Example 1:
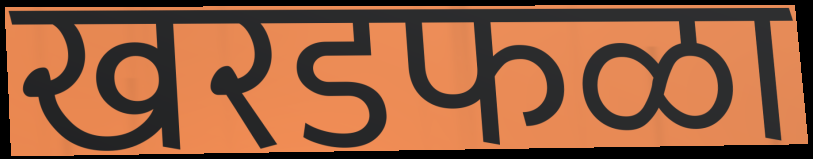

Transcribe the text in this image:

खरडफळा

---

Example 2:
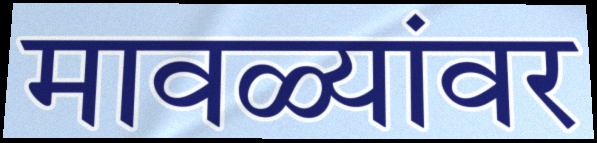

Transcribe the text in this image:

मावळ्यांवर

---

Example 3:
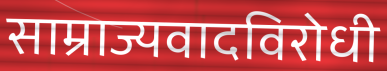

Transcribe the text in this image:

साम्राज्यवादविरोधी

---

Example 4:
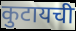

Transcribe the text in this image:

कुटायची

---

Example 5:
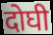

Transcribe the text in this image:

दोघी